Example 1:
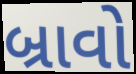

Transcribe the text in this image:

બ્રાવો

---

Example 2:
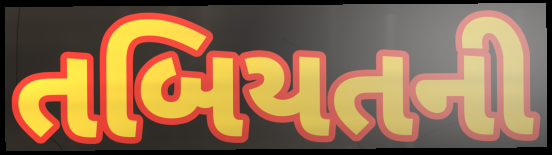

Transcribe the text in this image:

તબિયતની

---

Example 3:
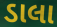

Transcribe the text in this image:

ડાલા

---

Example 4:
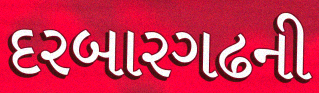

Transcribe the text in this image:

દરબારગઢની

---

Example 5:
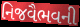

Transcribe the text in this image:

નિજવૈભવની